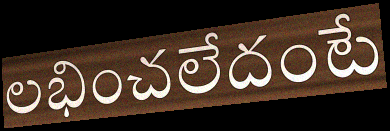
లభించలేదంటే